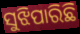
ସୁଝିପାରିଛି